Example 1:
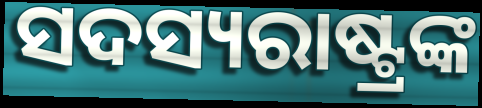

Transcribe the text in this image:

ସଦସ୍ୟରାଷ୍ଟ୍ରଙ୍କ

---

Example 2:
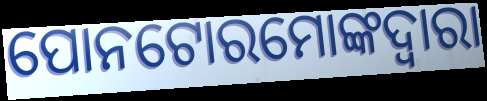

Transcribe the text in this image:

ପୋନଟୋରମୋଙ୍କଦ୍ୱାରା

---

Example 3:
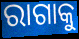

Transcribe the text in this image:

ରାଗାକୁ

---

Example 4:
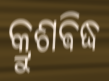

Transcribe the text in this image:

କ୍ରୁଶଵିଦ୍ଧ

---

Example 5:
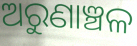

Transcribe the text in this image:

ଅରୁଣାଞ୍ଚଳ